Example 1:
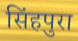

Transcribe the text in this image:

सिंहपुरा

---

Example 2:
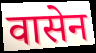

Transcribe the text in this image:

वासेन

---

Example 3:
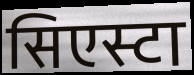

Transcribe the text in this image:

सिएस्टा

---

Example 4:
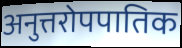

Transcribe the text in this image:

अनुत्तरोपपातिक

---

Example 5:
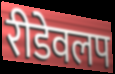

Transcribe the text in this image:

रीडेवलप